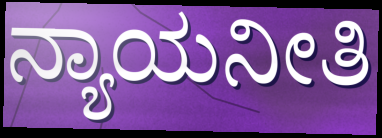
ನ್ಯಾಯನೀತಿ